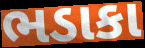
ભડાકા